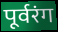
पूर्वरंग